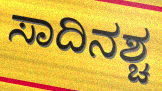
ಸಾದಿನಶ್ಚ